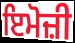
ਇਮੋਜ਼ੀ